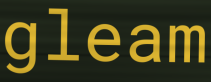
gleam